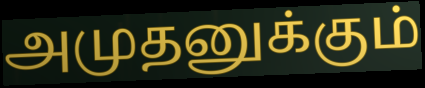
அமுதனுக்கும்